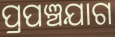
ପ୍ରପଞ୍ଚଯାଗ